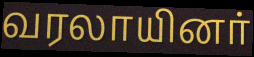
வரலாயினர்